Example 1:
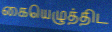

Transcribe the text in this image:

கையெழுத்திட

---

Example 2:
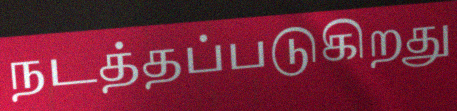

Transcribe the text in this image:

நடத்தப்படுகிறது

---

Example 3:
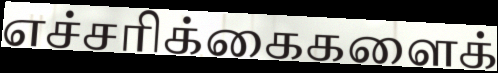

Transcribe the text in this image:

எச்சரிக்கைகளைக்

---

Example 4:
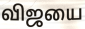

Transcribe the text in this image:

விஜயை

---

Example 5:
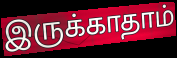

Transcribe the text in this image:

இருக்காதாம்